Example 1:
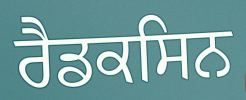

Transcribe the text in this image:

ਰੈਡਕਸਿਨ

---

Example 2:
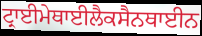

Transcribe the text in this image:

ਟ੍ਰਾਈਮੇਥਾਈਲੈਕਸੈਨਥਾਈਨ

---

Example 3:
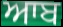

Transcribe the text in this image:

ਆਬ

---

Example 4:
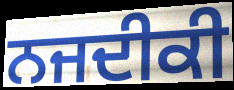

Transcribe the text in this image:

ਨਜਦੀਕੀ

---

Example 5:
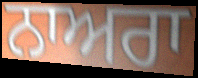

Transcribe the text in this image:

ਨਾਅਰਾ